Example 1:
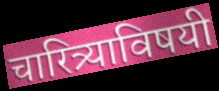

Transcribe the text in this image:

चारित्र्याविषयी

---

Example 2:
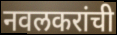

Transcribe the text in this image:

नवलकरांची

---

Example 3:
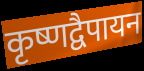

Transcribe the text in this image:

कृष्णद्वैपायन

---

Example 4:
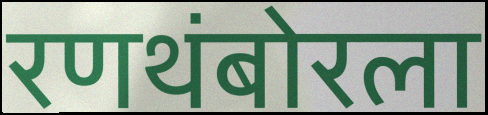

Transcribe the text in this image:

रणथंबोरला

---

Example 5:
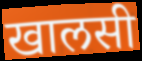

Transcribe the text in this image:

खालसी